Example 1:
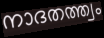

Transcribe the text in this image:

നാദതത്ത്വം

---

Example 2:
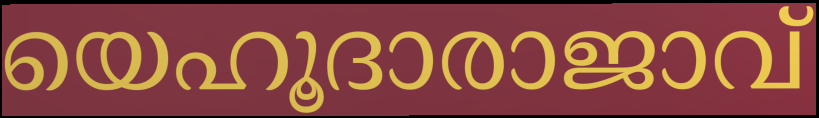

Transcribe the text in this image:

യെഹൂദാരാജാവ്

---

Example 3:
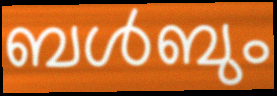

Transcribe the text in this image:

ബൾബും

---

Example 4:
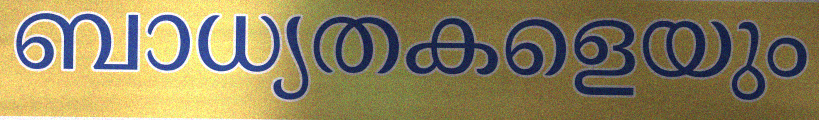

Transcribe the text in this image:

ബാധ്യതകളെയും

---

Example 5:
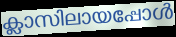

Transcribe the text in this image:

ക്ലാസിലായപ്പോൾ